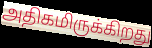
அதிகமிருக்கிறது